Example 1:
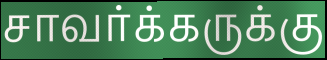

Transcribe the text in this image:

சாவர்க்கருக்கு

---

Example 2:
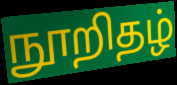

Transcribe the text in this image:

நூறிதழ்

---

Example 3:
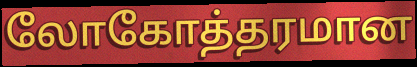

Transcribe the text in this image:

லோகோத்தரமான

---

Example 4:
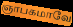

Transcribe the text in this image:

ஞாபகமாவே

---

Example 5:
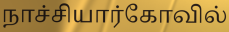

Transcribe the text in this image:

நாச்சியார்கோவில்